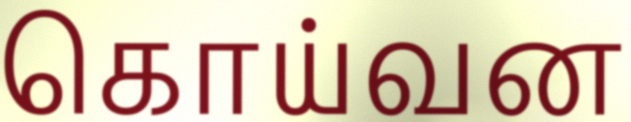
கொய்வன